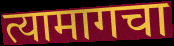
त्यामागचा